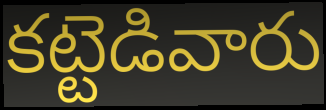
కట్టెడివారు